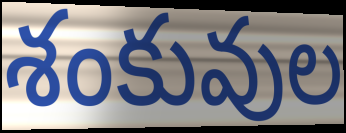
శంకువుల